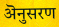
ऄनुसरण